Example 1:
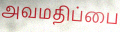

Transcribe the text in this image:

அவமதிப்பை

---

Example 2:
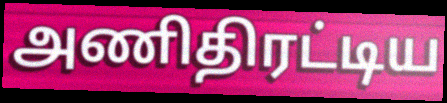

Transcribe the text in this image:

அணிதிரட்டிய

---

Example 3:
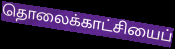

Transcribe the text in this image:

தொலைக்காட்சியைப்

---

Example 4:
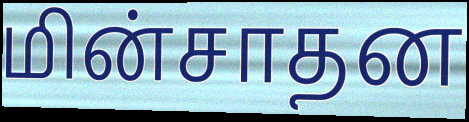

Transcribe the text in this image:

மின்சாதன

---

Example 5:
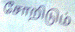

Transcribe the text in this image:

சோறிடும்